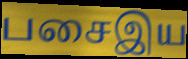
பசைஇய